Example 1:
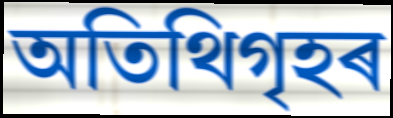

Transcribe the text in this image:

অতিথিগৃহৰ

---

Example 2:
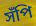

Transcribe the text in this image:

সঁপি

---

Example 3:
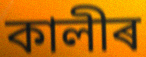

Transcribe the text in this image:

কালীৰ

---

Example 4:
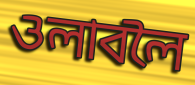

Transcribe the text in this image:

ওলাবলৈ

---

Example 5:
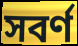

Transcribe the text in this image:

সবৰ্ণ